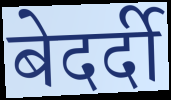
बेदर्दी